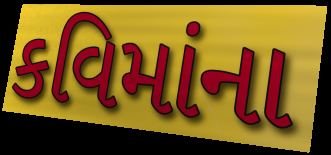
કવિમાંના